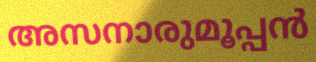
അസനാരുമൂപ്പൻ